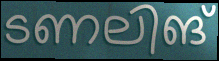
ടണലിങ്